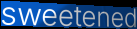
sweetened